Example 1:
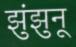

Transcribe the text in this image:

झुंझुनू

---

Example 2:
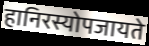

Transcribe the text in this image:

हानिरस्योपजायते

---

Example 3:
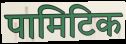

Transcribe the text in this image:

पामिटिक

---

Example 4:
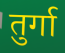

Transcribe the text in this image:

तुर्गा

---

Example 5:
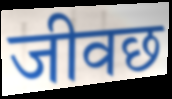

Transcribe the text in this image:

जीवछ